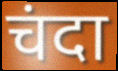
चंदा